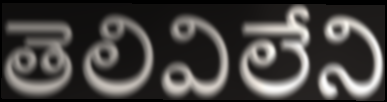
తెలివిలేని